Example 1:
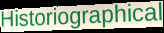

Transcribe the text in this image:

Historiographical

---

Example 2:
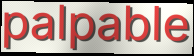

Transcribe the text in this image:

palpable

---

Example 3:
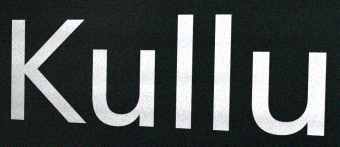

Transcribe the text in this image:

Kullu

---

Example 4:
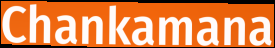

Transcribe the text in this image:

Chankamana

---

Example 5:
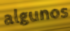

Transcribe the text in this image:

algunos